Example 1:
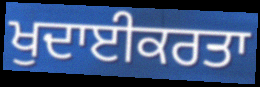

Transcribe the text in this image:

ਖੁਦਾਈਕਰਤਾ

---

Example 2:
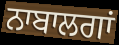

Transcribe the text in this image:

ਨਾਬਾਲਗਾਂ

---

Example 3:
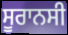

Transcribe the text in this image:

ਸੂਰਾਨਸੀ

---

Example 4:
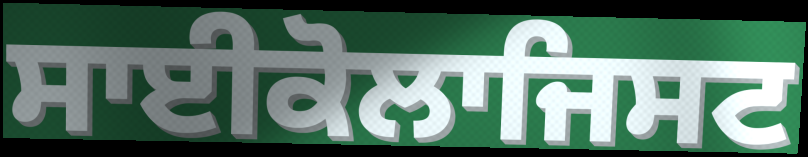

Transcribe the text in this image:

ਸਾਈਕੋਲਾਜਿਸਟ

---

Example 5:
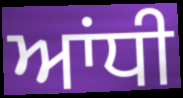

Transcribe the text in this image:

ਆਂਧੀ